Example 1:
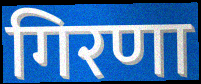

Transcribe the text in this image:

गिरणा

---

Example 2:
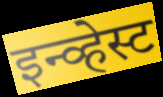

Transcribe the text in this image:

इन्व्हेस्ट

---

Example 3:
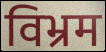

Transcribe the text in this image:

विभ्रम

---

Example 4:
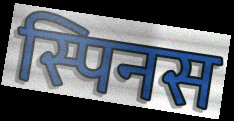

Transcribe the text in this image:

स्पिनस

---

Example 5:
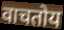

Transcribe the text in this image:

वाचतोय